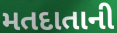
મતદાતાની